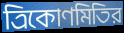
ত্রিকোণমিতির